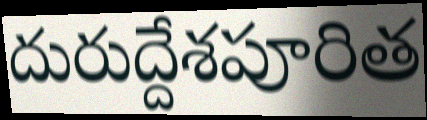
దురుద్దేశపూరిత